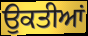
ਉਕਤੀਆਂ